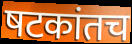
षटकांतच